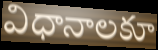
విధానాలకూ